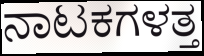
ನಾಟಕಗಳತ್ತ